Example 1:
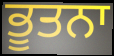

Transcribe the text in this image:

ਭੂਤਨਾ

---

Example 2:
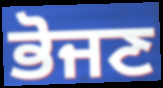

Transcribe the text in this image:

ਭੋਜਣ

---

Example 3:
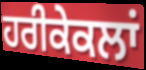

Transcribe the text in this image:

ਹਰੀਕੇਕਲਾਂ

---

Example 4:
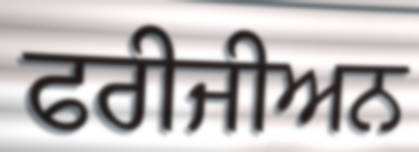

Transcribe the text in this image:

ਫਰੀਜੀਅਨ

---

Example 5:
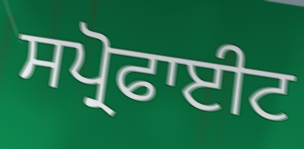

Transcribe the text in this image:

ਸਪ੍ਰੋਫਾਈਟ